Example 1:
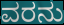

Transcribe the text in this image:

ವರನು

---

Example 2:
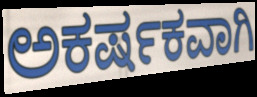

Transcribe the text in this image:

ಅಕರ್ಷಕವಾಗಿ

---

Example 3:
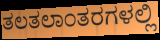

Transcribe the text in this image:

ತಲತಲಾಂತರಗಳಲ್ಲಿ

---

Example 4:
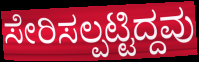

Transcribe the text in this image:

ಸೇರಿಸಲ್ಪಟ್ಟಿದ್ದವು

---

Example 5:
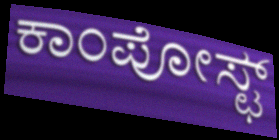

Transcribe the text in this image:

ಕಾಂಪೋಸ್ಟ್